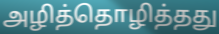
அழித்தொழித்தது